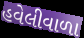
હવેલીવાળા